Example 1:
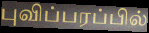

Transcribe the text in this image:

புவிப்பரப்பில்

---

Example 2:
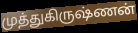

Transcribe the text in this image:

முத்துகிருஷ்ணன்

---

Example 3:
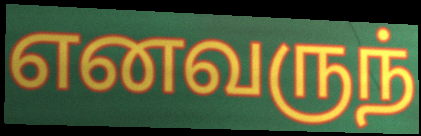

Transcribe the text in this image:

எனவருந்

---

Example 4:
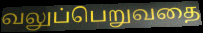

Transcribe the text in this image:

வலுப்பெறுவதை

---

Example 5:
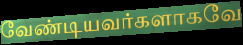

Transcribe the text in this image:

வேண்டியவர்களாகவே